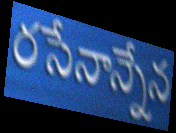
రసేనాన్నేన